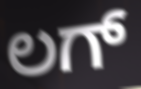
ಲಗ್